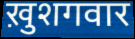
ख़ुशगवार